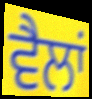
ਵੈਲਾਂ